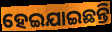
ହେଇଯାଇଛନ୍ତି